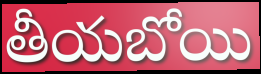
తీయబోయి